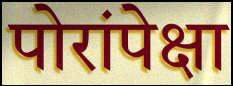
पोरांपेक्षा